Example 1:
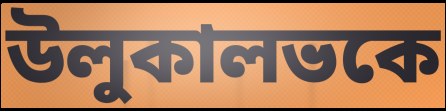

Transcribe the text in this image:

উলুকালভকে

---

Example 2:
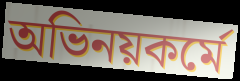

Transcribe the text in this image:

অভিনয়কর্মে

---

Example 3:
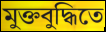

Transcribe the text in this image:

মুক্তবুদ্ধিতে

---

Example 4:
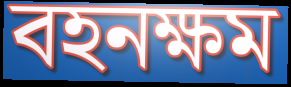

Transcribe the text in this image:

বহনক্ষম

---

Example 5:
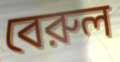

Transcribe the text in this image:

বেরুল